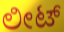
ಲೀಟ್